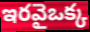
ఇరవైఒక్క